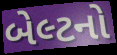
બેલ્ટનો